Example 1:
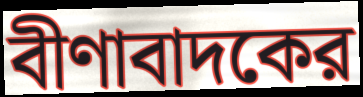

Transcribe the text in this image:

বীণাবাদকের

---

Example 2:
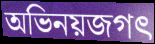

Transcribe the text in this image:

অভিনয়জগৎ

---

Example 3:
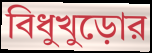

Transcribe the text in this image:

বিধুখুড়োর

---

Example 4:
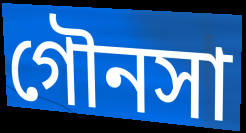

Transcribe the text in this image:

গৌনসা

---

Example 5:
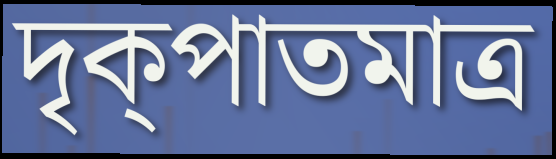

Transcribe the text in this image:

দৃক্পাতমাত্র